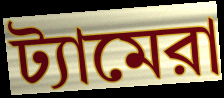
ট্যামেরা